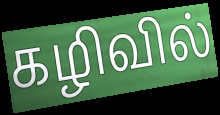
கழிவில்